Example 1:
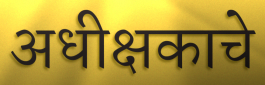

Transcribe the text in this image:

अधीक्षकाचे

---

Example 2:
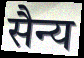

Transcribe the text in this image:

सैन्य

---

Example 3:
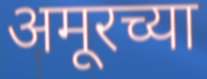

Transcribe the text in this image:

अमूरच्या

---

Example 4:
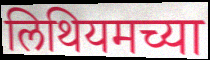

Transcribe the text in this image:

लिथियमच्या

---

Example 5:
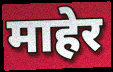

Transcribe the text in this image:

माहेर